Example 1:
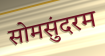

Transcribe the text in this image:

सोमसुंदरम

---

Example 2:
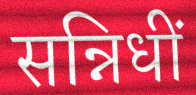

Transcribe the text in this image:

सन्निधीं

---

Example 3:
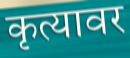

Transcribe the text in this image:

कृत्यावर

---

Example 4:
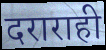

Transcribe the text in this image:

दराराही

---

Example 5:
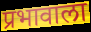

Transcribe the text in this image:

प्रभावाला